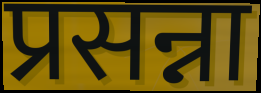
प्रसन्ना